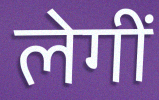
लेगीं